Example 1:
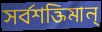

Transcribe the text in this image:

সর্বশক্তিমান্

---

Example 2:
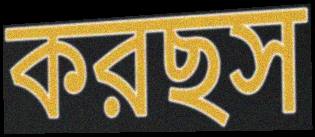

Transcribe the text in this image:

করছস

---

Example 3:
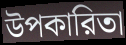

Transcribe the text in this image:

উপকারিতা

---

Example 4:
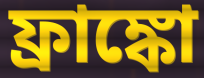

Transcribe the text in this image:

ফ্রাঙ্কো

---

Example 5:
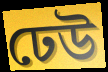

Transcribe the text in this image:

ঢেউ